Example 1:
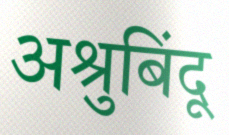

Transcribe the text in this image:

अश्रुबिंदू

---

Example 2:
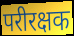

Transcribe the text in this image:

परीरक्षक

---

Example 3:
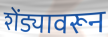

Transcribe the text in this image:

शेंड्यावरून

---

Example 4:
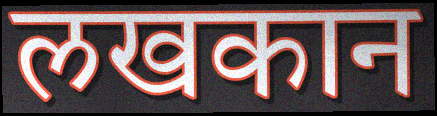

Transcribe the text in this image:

लखकान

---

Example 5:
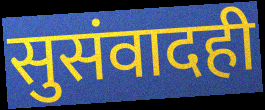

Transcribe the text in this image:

सुसंवादही